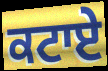
ਕਟਾਏ